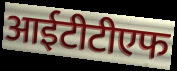
आईटीटीएफ